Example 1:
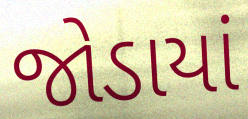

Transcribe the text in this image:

જોડાયાં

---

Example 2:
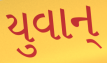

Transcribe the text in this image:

યુવાન્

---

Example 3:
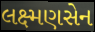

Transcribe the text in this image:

લક્ષ્મણસેન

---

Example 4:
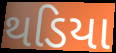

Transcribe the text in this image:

થડિયા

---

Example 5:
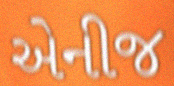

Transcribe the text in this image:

એનીજ